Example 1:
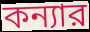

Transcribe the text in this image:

কন্যার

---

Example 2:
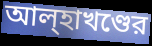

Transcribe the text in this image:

আল্হাখণ্ডের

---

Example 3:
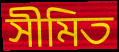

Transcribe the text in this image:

সীমিত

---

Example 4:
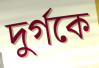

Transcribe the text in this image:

দুর্গকে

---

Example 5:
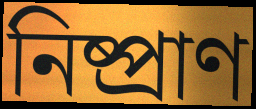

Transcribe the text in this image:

নিষ্প্রাণ